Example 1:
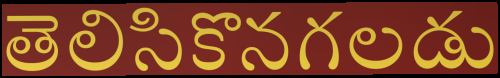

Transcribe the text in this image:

తెలిసికొనగలడు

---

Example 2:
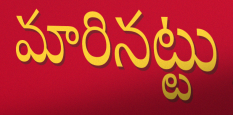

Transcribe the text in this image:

మారినట్టు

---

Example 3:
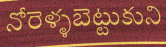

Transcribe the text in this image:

నోరెళ్ళబెట్టుకుని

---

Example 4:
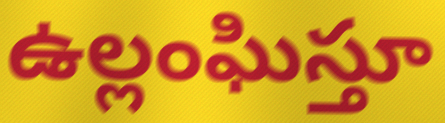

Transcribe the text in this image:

ఉల్లంఘిస్తూ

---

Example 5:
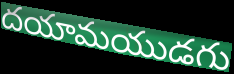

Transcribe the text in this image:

దయామయుడగు